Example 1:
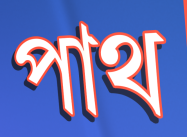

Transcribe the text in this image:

পাথ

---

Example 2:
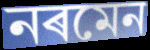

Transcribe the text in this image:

নৰমেন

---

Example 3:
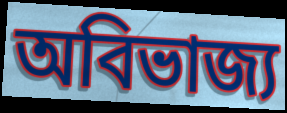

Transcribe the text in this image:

অবিভাজ্য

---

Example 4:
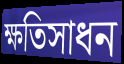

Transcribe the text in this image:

ক্ষতিসাধন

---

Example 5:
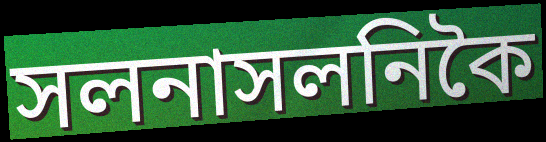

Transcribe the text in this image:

সলনাসলনিকৈ